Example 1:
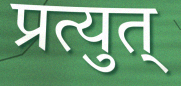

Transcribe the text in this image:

प्रत्युत्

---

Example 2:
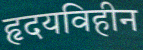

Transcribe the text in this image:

हृदयविहीन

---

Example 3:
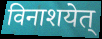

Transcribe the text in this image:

विनाशयेत्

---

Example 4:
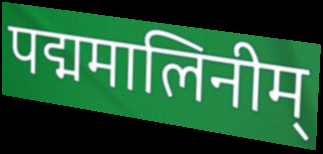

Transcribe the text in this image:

पद्ममालिनीम्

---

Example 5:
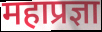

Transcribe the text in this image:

महाप्रज्ञा